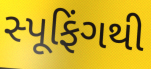
સ્પૂફિંગથી